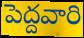
పెద్దవారి